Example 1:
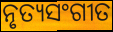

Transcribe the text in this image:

ନୃତ୍ୟସଂଗୀତ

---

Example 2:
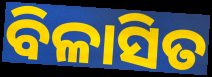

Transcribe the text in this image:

ବିଳାସିତ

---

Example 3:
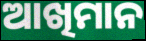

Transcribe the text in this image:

ଆଖିମାନ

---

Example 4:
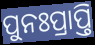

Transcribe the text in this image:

ପୁନଃପ୍ରାପ୍ତି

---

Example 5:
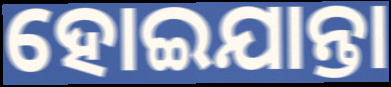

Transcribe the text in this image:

ହୋଇଯାନ୍ତା